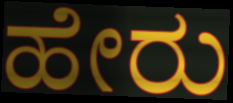
ಹೇರು